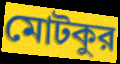
মোটকুর